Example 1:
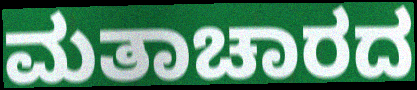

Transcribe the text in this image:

ಮತಾಚಾರದ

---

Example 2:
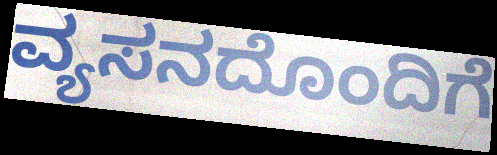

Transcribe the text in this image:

ವ್ಯಸನದೊಂದಿಗೆ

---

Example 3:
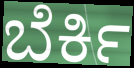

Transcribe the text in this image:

ಬೆರ್ಕಿ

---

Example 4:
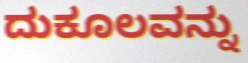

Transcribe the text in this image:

ದುಕೂಲವನ್ನು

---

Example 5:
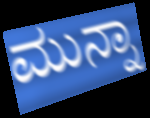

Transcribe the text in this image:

ಮುನ್ನಾ